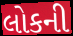
લોકની